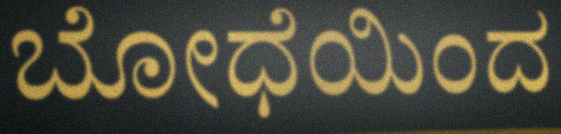
ಬೋಧೆಯಿಂದ